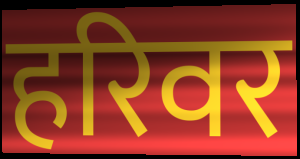
हरिवर